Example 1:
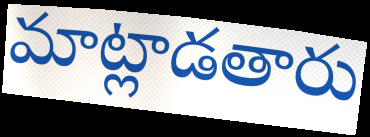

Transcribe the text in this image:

మాట్లాడతారు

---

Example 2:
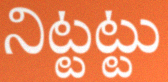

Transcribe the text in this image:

నిట్టట్టు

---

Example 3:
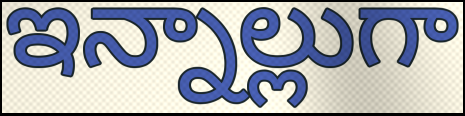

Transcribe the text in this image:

ఇన్నాల్లుగా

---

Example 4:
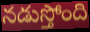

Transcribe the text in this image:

నడుస్తోంది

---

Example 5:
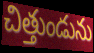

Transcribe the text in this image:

చిత్తుండును